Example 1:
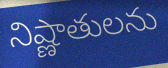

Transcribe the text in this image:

నిష్ణాతులను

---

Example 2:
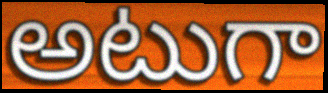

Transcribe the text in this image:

అటుగా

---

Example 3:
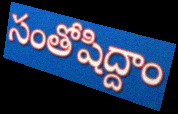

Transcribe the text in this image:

సంతోషిద్దాం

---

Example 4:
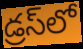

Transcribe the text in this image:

డ్రస్‌లో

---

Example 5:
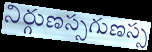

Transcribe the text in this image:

నిర్గుణస్సగుణస్స